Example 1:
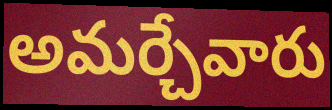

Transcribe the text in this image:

అమర్చేవారు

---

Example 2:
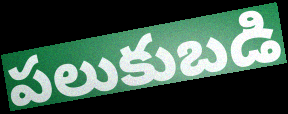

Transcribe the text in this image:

పలుకుబడి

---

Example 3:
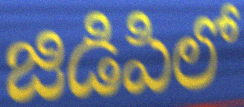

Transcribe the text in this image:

జిడిపిలో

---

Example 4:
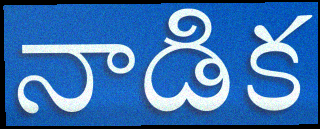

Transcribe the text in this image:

నాడిక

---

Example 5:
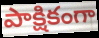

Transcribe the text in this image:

పాక్షికంగా